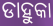
ଡାହୁକା